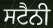
ਸਟੈਨੀ